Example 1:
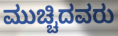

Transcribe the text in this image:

ಮುಚ್ಚಿದವರು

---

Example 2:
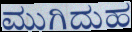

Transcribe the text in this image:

ಮುಗಿದುಹ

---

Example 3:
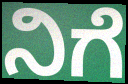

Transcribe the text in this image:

ನಿಗೆ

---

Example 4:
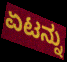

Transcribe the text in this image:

ಏಟನ್ನು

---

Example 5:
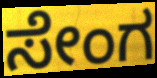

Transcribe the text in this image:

ಸೇಂಗ